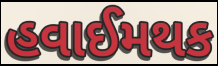
હવાઈમથક